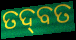
ତଦ୍‌ବତ